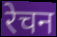
रेचन